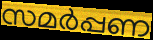
സമർപ്പണ